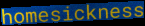
homesickness